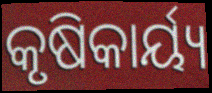
କୃଷିକାର୍ୟ୍ୟ